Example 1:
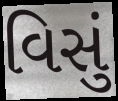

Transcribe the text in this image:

વિસું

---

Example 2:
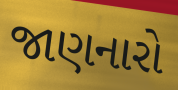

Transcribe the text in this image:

જાણનારો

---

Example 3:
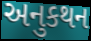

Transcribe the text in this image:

અનુકથન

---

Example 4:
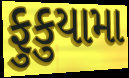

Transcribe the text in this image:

ફુકુયામા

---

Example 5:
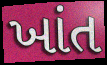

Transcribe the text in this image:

ખાંત